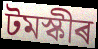
টমস্কীৰ